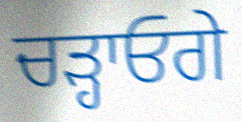
ਚੜ੍ਹਾਓਗੇ